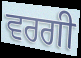
ਵਰਗੀ